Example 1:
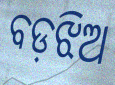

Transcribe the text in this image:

ବଡ଼ଝିଅ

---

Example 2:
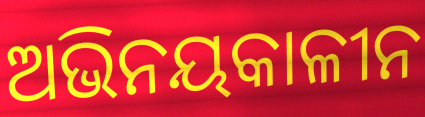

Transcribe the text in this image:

ଅଭିନୟକାଳୀନ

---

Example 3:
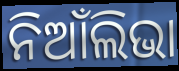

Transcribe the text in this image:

ନିଆଁଲିଭା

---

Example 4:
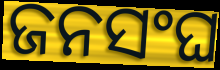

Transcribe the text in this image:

ଜନସଂଘ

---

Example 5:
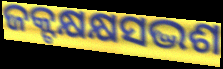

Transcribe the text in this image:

ଜକ୍ଟକ୍ଷକ୍ଷସଦ୍ଭଶ